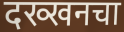
दख्खनचा